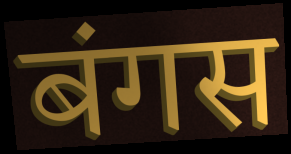
बंगस